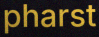
pharst